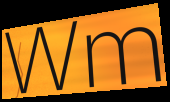
Wm